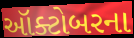
ઑક્ટોબરના